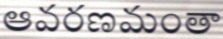
ఆవరణమంతా